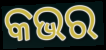
କଭର